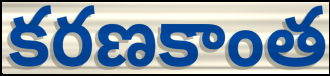
కరణకాంత